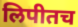
लिपीतच